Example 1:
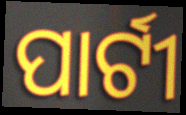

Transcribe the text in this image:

ପାର୍ଟୀ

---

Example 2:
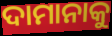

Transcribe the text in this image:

ଦାମାନାକୁ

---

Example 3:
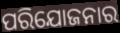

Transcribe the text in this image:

ପରିଯୋଜନାର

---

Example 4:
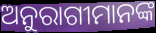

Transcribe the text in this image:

ଅନୁରାଗୀମାନଙ୍କ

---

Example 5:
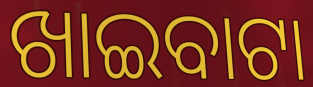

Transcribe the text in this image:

ଖାଇବାଟା